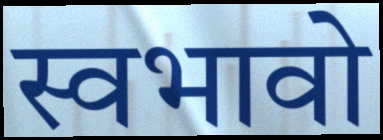
स्वभावो